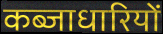
कब्जाधारियों